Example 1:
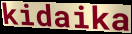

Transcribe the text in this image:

kidaika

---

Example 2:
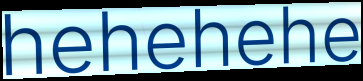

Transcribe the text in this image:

hehehehe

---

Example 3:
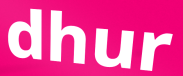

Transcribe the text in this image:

dhur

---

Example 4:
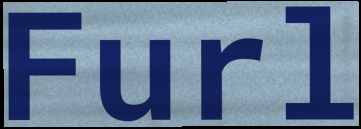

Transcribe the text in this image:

Furl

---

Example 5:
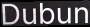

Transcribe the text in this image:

Dubun